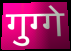
गुग्गे